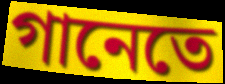
গানেতে